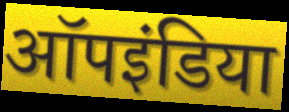
ऑपइंडिया